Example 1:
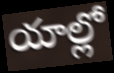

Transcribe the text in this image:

యాల్లో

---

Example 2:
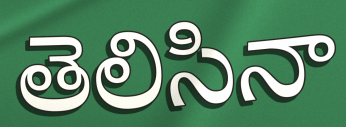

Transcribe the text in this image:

తెలిసినా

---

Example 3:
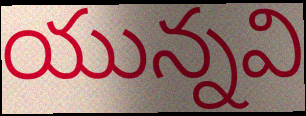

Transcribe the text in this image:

యున్నవి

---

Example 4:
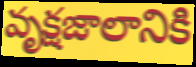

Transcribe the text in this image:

వృక్షజాలానికి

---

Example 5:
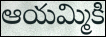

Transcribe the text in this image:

ఆయమ్మికి